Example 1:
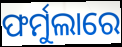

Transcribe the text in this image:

ଫର୍ମୁଲାରେ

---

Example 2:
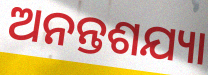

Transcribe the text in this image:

ଅନନ୍ତଶଯ୍ୟା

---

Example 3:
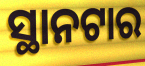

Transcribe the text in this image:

ସ୍ଥାନଟାର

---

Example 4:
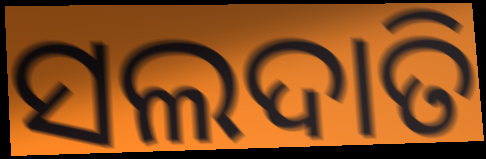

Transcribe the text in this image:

ସଲଦାତି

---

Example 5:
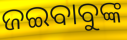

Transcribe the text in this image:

ଜଇବାବୁଙ୍କ